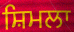
ਸ਼ਿਮਲਾ